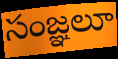
సంజ్ఞలూ